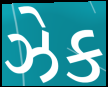
ઝેક